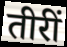
तीरीं